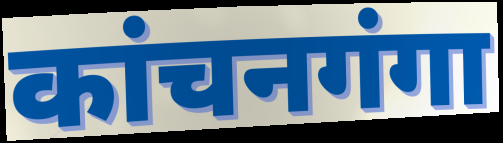
कांचनगंगा